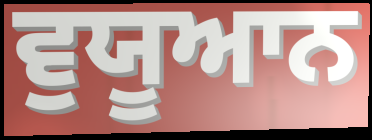
ਵੁਯੂਆਨ